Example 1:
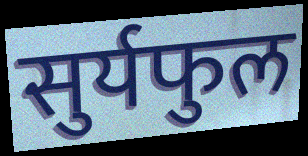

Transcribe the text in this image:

सुर्यफुल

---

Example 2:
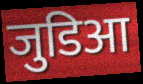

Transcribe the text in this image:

जुडिआ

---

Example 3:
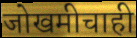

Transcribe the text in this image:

जोखमीचाही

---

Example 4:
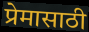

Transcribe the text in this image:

प्रेमासाठी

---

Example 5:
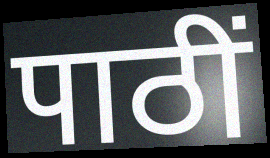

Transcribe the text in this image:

पाठीं